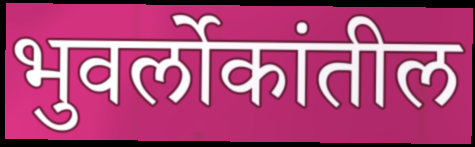
भुवर्लोकांतील